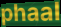
phaal